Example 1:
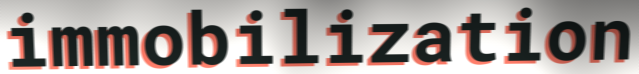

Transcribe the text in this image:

immobilization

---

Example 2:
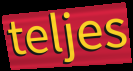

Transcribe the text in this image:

teljes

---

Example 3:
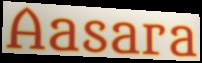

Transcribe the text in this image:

Aasara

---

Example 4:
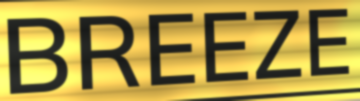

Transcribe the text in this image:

BREEZE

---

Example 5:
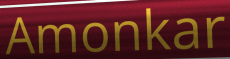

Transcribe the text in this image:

Amonkar